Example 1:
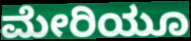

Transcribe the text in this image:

ಮೇರಿಯೂ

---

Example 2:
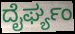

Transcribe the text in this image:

ದೈರ್ಘ್ಯಂ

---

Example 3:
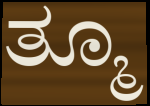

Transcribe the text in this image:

ತ್ಮೂ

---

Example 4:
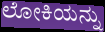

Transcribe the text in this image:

ಲೋಕಿಯನ್ನು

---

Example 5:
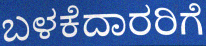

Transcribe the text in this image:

ಬಳಕೆದಾರರಿಗೆ